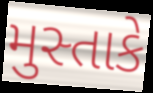
મુસ્તાકે